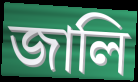
জালি